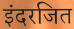
इंदरजित